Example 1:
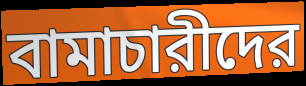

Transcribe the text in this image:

বামাচারীদের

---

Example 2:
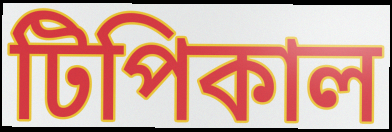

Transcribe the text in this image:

টিপিকাল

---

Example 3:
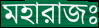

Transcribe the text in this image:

মহারাজঃ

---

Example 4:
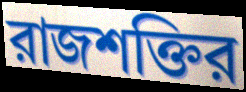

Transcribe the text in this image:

রাজশক্তির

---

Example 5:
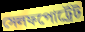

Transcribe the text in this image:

সেলফপোর্ট্রেট